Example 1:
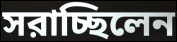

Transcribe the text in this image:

সরাচ্ছিলেন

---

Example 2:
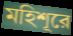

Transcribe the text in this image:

মহিশূরে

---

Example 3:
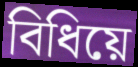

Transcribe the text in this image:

বিধিয়ে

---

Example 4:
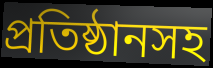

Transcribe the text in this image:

প্রতিষ্ঠানসহ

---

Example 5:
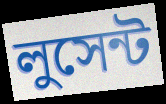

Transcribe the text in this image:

লুসেন্ট